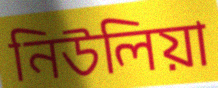
নিউলিয়া